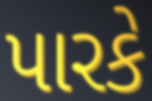
પારકે